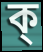
ক্